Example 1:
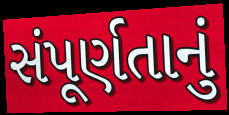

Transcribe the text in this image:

સંપૂર્ણતાનું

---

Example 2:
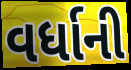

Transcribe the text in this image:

વર્ધાની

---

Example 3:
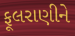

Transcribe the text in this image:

ફૂલરાણીને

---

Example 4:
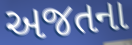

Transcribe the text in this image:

અજતના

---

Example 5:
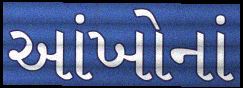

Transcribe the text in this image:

આંખોનાં